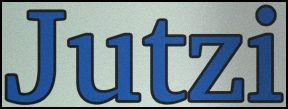
Jutzi